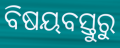
ବିଷୟବସ୍ତୁରୁ